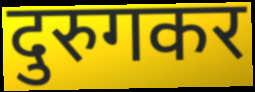
दुरुगकर